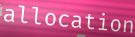
allocation